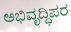
ಅಭಿವೃದ್ಧಿಪರ